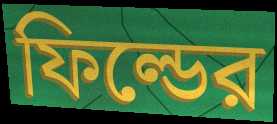
ফিল্ডের